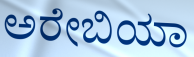
ಅರೇಬಿಯಾ